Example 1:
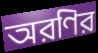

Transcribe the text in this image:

অরণির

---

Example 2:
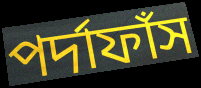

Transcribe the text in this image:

পর্দাফাঁস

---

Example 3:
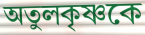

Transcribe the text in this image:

অতুলকৃষ্ণকে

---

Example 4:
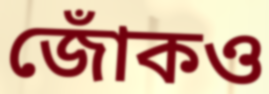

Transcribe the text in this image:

জোঁকও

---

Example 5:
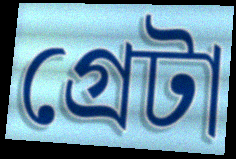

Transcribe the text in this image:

গ্রেটা